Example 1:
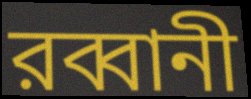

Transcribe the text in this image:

রব্বানী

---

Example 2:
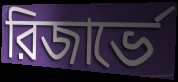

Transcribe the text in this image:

রিজার্ভে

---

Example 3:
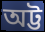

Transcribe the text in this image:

অট্ট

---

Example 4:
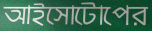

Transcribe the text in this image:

আইসোটোপের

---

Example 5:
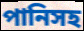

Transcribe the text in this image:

পানিসহ